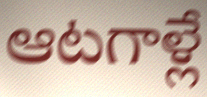
ఆటగాళ్లే